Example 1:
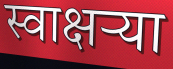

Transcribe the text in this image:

स्वाक्षऱ्या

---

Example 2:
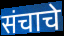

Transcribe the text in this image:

संचाचे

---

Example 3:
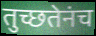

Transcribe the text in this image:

तुच्छतेनंच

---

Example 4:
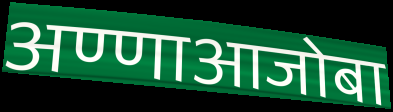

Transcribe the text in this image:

अण्णाआजोबा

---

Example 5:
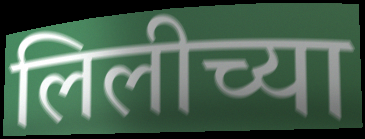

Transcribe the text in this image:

लिलीच्या